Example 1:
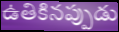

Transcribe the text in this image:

ఉతికినప్పుడు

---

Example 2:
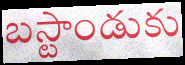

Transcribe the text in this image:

బస్టాండుకు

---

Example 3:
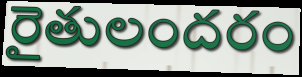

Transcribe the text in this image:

రైతులందరం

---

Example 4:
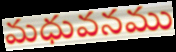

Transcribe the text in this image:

మధువనము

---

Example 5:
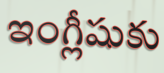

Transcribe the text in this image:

ఇంగ్లీషుకు